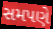
સમપણે